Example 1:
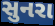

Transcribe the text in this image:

સુનરા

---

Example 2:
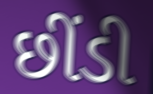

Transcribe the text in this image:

છીંડી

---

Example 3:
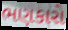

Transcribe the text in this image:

ભણકારો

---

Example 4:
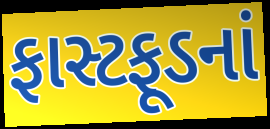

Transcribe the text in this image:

ફાસ્ટફૂડનાં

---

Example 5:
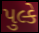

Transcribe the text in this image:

પુલ્કે